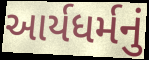
આર્યધર્મનું